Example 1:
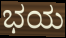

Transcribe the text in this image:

ಭಯ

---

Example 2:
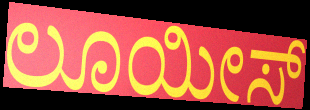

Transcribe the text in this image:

ಲೂಯೀಸ್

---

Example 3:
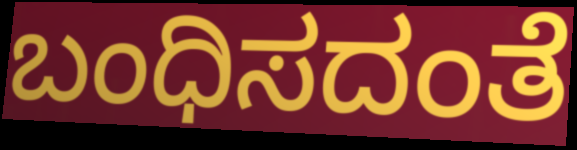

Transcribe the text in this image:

ಬಂಧಿಸದಂತೆ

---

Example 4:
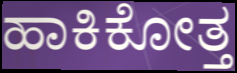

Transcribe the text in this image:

ಹಾಕಿಕೋತ್ತ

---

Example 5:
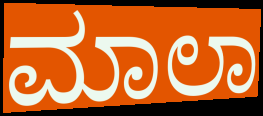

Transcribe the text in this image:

ಮಾಲಾ